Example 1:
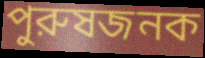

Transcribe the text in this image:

পুৰুষজনক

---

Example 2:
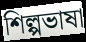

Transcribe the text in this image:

শিল্পভাষা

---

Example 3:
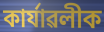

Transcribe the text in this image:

কাৰ্যাৱলীক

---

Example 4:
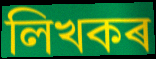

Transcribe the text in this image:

লিখকৰ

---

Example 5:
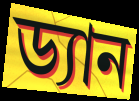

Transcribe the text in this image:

ড্যান